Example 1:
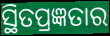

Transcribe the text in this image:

ସ୍ଥିତପ୍ରଜ୍ଞତାର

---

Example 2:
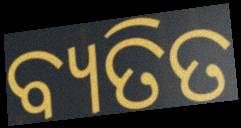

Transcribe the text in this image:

ବ୍ୟତିତ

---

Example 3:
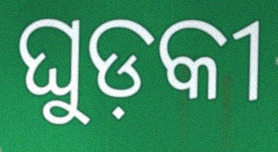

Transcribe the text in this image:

ଘୁଡ଼କୀ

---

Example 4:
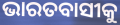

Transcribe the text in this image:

ଭାରତବାସୀକୁ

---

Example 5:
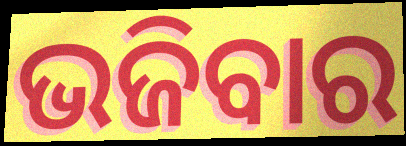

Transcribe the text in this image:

ଭଜିବାର